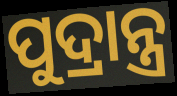
ପୁଦ୍ରାନ୍ତ୍ର